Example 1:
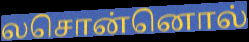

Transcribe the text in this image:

லசொன்னொல்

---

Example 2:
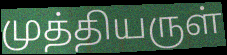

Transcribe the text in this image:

முத்தியருள்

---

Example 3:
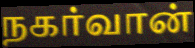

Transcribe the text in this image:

நகர்வான்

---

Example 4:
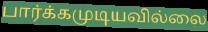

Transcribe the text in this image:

பார்க்கமுடியவில்லை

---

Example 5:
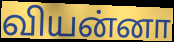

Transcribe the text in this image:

வியன்னா